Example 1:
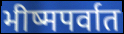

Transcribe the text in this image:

भीष्मपर्वात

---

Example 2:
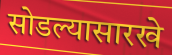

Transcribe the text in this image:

सोडल्यासारखे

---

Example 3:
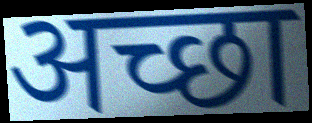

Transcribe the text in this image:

अच्छा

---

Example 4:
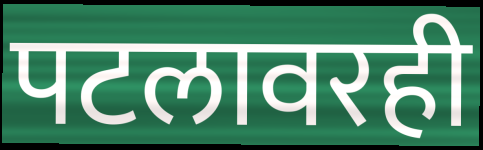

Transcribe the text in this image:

पटलावरही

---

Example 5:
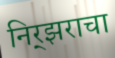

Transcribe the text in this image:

निर्झराचा